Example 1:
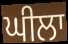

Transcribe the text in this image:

ਘੀਲਾ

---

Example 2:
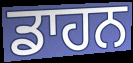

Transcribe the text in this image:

ਡਾਹਨ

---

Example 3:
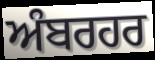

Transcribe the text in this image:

ਅੰਬਰਹਰ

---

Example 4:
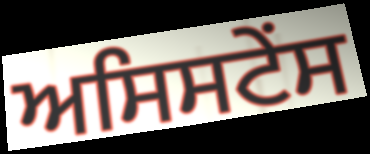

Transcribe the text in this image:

ਅਸਿਸਟੇਂਸ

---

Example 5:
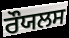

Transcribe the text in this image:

ਰੌਯਲਸ